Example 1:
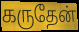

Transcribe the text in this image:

கருதேன்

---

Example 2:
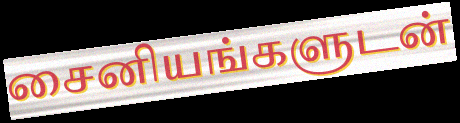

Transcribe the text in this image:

சைனியங்களுடன்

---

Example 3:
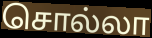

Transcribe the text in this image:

சொல்லா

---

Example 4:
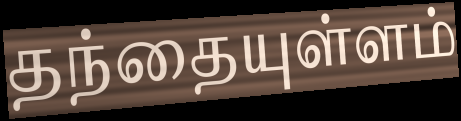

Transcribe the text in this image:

தந்தையுள்ளம்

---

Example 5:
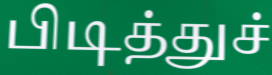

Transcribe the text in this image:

பிடித்துச்